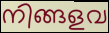
നിങ്ങളവ